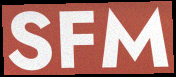
SFM